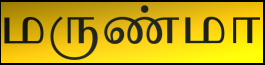
மருண்மா